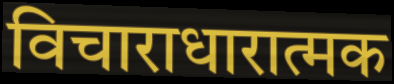
विचाराधारात्मक